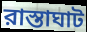
রাস্তাঘাট